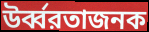
উর্ব্বরতাজনক